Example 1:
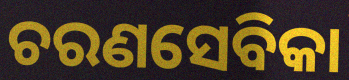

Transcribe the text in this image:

ଚରଣସେବିକା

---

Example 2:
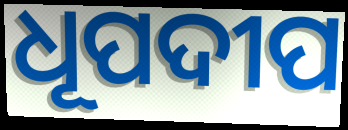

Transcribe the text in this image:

ଧୂପଦୀପ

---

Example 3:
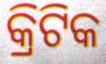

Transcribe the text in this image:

କ୍ରିଟିକ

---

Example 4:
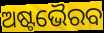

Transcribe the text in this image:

ଅଷ୍ଟଭୈରବ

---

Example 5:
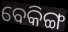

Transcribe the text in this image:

ବେକିଙ୍ଗ